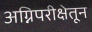
अग्निपरीक्षेतून